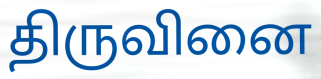
திருவினை